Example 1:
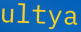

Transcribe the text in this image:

ultya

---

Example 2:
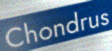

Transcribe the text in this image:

Chondrus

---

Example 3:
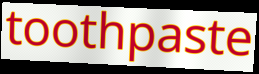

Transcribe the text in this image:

toothpaste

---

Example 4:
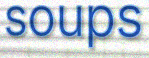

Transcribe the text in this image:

soups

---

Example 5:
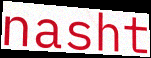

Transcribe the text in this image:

nasht